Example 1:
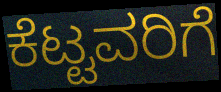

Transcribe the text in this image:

ಕೆಟ್ಟವರಿಗೆ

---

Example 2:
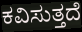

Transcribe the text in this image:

ಕವಿಸುತ್ತದೆ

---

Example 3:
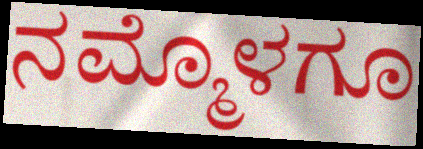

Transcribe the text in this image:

ನಮ್ಮೊಳಗೂ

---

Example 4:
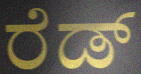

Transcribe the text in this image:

ರೆಡ್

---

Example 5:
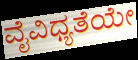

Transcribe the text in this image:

ವೈವಿಧ್ಯತೆಯೇ